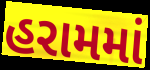
હરામમાં